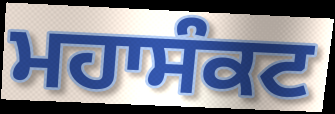
ਮਹਾਸੰਕਟ